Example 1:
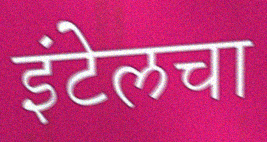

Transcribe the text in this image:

इंटेलचा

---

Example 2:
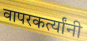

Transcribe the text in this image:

वापरकर्त्यांनी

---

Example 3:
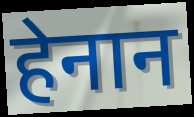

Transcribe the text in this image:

हेनान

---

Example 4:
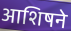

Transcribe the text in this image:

आशिषने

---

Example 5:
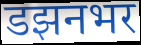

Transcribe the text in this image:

डझनभर